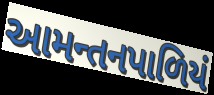
આમન્તનપાળિયં